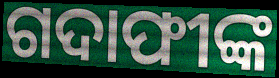
ଗଦାଫୀଙ୍କ